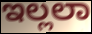
ಇಲ್ಲಲಾ